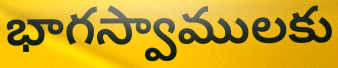
భాగస్వాములకు